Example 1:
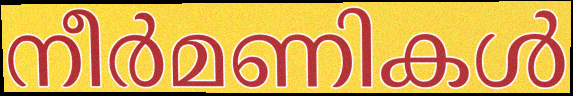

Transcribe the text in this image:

നീർമണികൾ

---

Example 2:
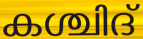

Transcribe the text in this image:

കശ്ചിദ്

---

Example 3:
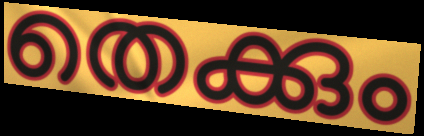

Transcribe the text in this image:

തെക്കും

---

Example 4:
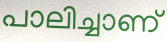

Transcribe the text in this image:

പാലിച്ചാണ്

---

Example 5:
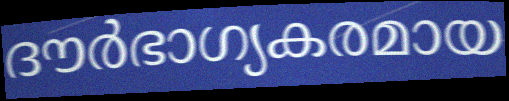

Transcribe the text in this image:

ദൗർഭാഗ്യകരമായ